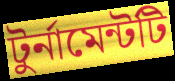
টুর্নামেন্টটি